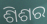
ଶିଶର